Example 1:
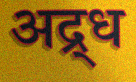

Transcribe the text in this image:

अद्र्ध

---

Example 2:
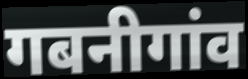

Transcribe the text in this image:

गबनीगांव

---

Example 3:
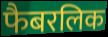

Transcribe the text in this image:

फैबरलिक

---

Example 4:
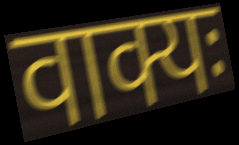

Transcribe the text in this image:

वाक्यः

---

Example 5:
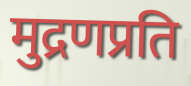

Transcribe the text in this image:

मुद्रणप्रति